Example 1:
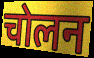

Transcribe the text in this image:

चोलन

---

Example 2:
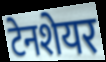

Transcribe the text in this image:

टेनशेयर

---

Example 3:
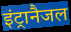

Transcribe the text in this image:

इंट्रानैजल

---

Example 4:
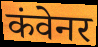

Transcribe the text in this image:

कंवेनर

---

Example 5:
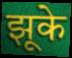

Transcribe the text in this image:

झूके